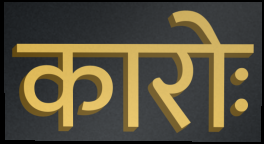
कारोः